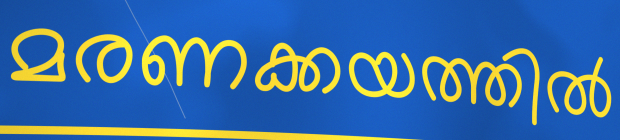
മരണക്കയത്തിൽ